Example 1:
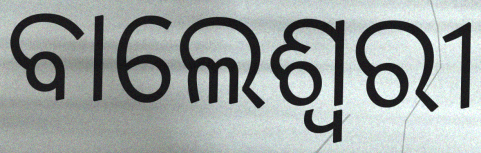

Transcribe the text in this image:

ବାଲେଶ୍ୱରୀ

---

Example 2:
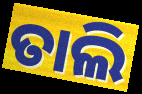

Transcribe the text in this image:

ତାଲି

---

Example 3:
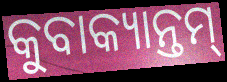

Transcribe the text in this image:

କୁବାକ୍ୟାନ୍ତମ୍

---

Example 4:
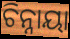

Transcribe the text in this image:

ଚିନ୍ନାୟା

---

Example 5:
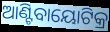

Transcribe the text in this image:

ଆଣ୍ଟିବାୟୋଟିକ୍ର